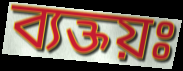
ব্যক্তয়ঃ